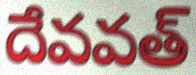
దేవవత్